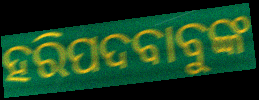
ହରିପଦବାବୁଙ୍କ